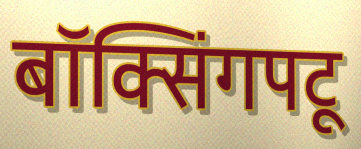
बॉक्सिंगपटू